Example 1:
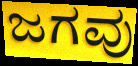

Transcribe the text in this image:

ಜಗವು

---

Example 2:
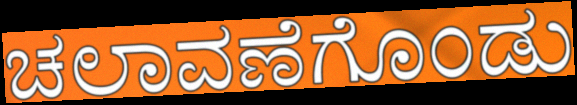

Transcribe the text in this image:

ಚಲಾವಣೆಗೊಂಡು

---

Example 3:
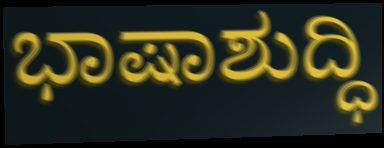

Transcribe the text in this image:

ಭಾಷಾಶುದ್ಧಿ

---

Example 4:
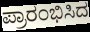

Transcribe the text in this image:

ಪ್ರಾರಂಭಿಸಿದ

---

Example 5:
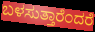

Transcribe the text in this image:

ಬಳಸುತ್ತಾರೆಂದರೆ